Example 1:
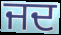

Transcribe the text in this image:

ਜਦ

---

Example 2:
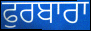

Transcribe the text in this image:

ਫੁਰਬਾਰਾ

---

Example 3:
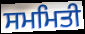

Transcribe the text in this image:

ਸਮਮਿਤੀ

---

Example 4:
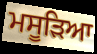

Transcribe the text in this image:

ਮਸੂੜਿਆ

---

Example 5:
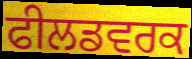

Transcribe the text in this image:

ਫੀਲਡਵਰਕ